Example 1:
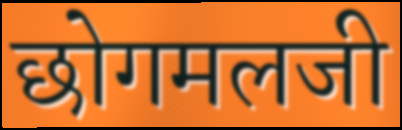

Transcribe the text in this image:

छोगमलजी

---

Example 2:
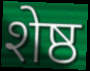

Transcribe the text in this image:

शेष्ठ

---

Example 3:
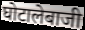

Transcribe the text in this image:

घोटालेबाजी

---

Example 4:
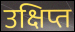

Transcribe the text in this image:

उक्षिप्त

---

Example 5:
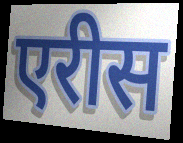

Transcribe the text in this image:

एरीस